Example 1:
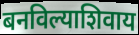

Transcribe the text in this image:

बनविल्याशिवाय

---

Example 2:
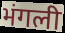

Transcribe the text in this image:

भंगली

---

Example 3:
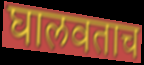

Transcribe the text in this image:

घालवताच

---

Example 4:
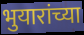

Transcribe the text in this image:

भुयारांच्या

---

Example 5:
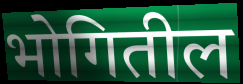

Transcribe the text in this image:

भोगितील